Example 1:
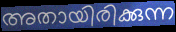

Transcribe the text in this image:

അതായിരിക്കുന്ന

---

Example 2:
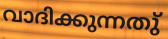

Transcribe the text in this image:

വാദിക്കുന്നതു്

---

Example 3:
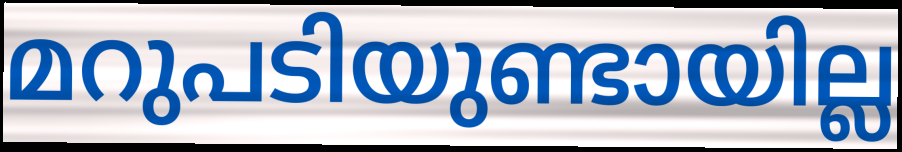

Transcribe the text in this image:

മറുപടിയുണ്ടായില്ല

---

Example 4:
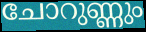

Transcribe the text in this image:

ചോറുണ്ണും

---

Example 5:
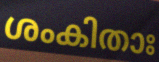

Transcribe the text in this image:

ശംകിതാഃ